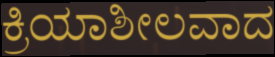
ಕ್ರಿಯಾಶೀಲವಾದ